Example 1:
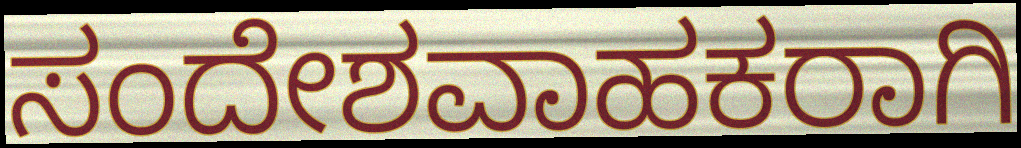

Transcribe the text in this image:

ಸಂದೇಶವಾಹಕರಾಗಿ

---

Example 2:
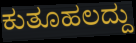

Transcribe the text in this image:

ಕುತೂಹಲದ್ದು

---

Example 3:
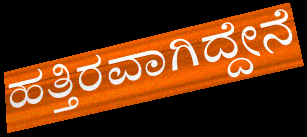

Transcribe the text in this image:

ಹತ್ತಿರವಾಗಿದ್ದೇನೆ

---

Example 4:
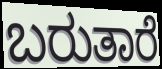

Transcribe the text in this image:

ಬರುತಾರೆ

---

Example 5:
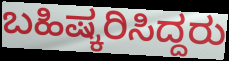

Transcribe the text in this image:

ಬಹಿಷ್ಕರಿಸಿದ್ದರು